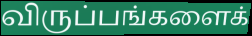
விருப்பங்களைக்